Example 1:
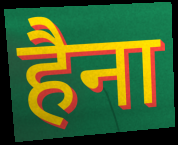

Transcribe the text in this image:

हैना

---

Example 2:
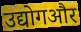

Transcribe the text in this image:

उद्योगऔर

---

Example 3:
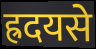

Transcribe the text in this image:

ह्रदयसे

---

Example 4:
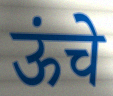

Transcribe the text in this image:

ऊंचे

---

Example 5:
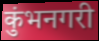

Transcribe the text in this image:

कुंभनगरी